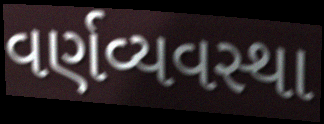
વર્ણવ્યવસ્થા